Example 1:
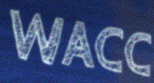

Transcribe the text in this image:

WACC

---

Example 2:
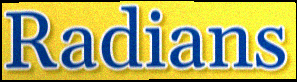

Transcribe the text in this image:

Radians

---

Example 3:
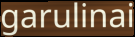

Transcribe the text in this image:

garulinai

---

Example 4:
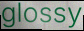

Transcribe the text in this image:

glossy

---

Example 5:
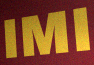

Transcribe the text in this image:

IMI